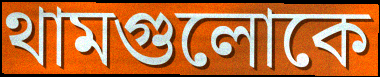
থামগুলোকে